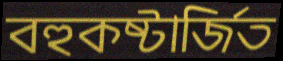
বহুকষ্টার্জিত